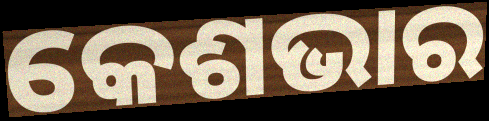
କେଶଭାର